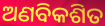
ଅଣବିକଶିତ